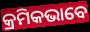
କ୍ରମିକଭାବେ